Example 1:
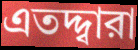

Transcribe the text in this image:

এতদ্দ্বারা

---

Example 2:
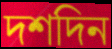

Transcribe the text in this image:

দশদিন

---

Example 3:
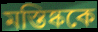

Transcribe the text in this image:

মস্তিষ্ককে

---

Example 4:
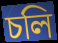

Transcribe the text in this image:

চলি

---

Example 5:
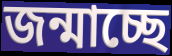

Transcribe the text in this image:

জন্মাচ্ছে